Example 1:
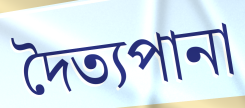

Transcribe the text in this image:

দৈত্যপানা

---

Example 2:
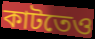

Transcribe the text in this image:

কাটতেও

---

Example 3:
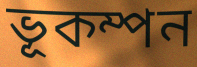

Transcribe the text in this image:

ভূকম্পন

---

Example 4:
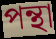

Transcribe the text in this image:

পন্থা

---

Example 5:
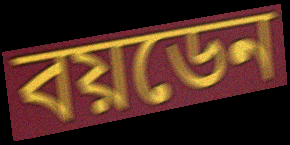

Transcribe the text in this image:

বয়ডেন